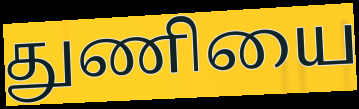
துணியை